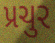
પ્રચુર